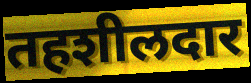
तहशीलदार